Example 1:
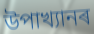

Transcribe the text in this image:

উপাখ্যানৰ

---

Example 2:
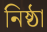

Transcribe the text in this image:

নিষ্ঠা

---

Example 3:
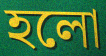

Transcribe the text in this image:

হলো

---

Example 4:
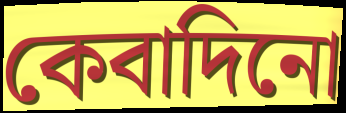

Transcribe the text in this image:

কেবাদিনো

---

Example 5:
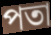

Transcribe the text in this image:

পতা